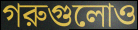
গরুগুলোও